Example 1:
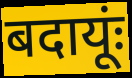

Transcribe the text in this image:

बदायूंः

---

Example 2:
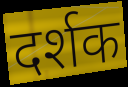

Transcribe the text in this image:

दर्शक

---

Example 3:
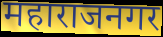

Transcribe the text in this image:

महाराजनगर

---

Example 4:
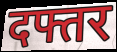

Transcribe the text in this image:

दफ्तर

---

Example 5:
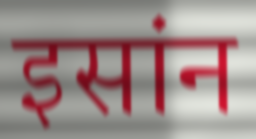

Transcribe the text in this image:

इसांन